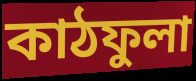
কাঠফুলা